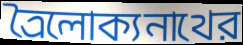
ত্রৈলোক্যনাথের